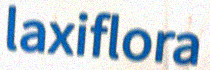
laxiflora